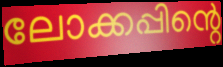
ലോക്കപ്പിന്റെ